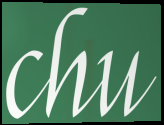
chu